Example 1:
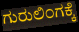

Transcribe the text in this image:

ಗುರುಲಿಂಗಕ್ಕೆ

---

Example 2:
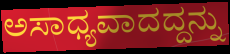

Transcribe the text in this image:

ಅಸಾಧ್ಯವಾದದ್ದನ್ನು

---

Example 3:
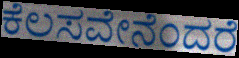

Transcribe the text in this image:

ಕೆಲಸವೇನೆಂದರೆ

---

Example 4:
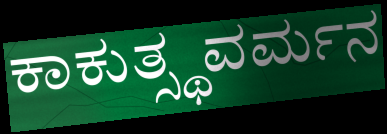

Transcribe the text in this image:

ಕಾಕುತ್ಸ್ಥವರ್ಮನ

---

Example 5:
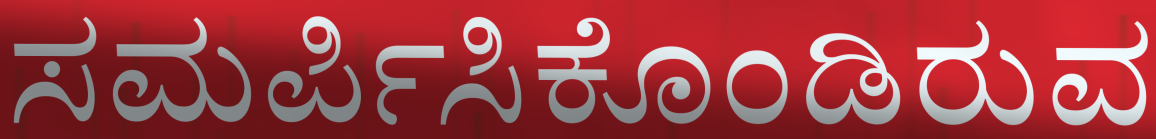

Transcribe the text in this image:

ಸಮರ್ಪಿಸಿಕೊಂಡಿರುವ